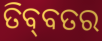
ତିବ୍‌ବତର